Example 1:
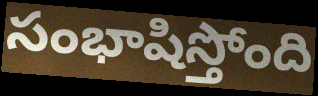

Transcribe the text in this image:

సంభాషిస్తోంది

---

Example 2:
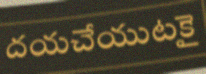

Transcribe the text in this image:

దయచేయుటకై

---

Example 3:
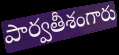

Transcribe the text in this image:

పార్వతీశంగారు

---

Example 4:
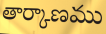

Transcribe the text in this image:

తార్కాణము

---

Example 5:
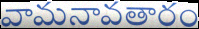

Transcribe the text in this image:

వామనావతారం